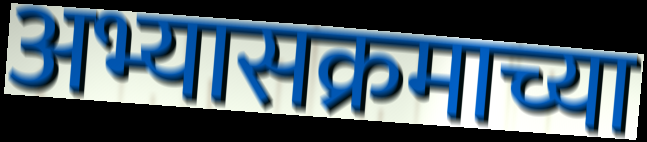
अभ्यासक्रमाच्या